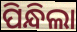
ପିନ୍ଧିଲା